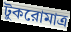
টুকরোমাত্র